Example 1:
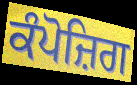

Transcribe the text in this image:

ਕੰਪੋਜ਼ਿਗ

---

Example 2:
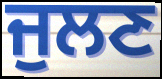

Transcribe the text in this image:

ਜੁਲਣ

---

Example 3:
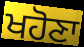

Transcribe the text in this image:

ਖਹੋਣਾ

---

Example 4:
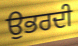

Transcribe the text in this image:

ਉਭਰਦੀ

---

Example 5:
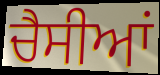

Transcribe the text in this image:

ਚੈਸੀਆਂ